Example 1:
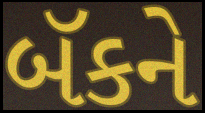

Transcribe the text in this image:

બૅકને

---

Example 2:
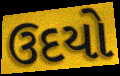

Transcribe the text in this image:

ઉદયો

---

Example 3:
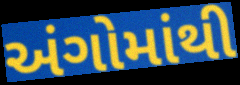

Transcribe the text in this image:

અંગોમાંથી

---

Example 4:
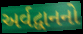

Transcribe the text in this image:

અર્વદ્વાનનો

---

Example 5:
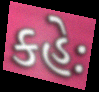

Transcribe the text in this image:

કહેઃ